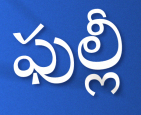
ఫుల్లీ